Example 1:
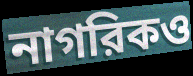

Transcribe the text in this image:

নাগরিকও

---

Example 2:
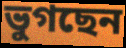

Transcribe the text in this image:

ভুগছেন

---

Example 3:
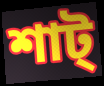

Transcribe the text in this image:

শাট্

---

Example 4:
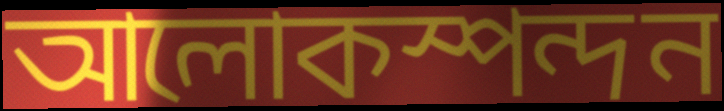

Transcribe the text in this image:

আলোকস্পন্দন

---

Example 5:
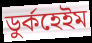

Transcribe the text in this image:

ডুর্কহেইম